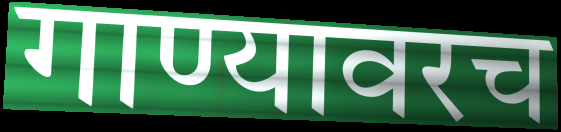
गाण्यावरच